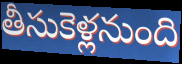
తీసుకెళ్లనుంది